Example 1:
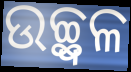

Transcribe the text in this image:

ଉଚ୍ଛ୍ଵଳ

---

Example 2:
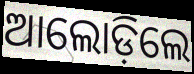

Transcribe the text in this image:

ଆଲୋଡ଼ିଲେ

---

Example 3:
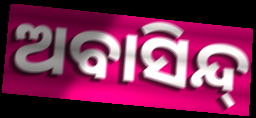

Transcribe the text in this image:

ଅବାସିନ୍ଦ୍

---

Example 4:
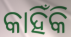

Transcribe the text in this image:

କାହିଁକି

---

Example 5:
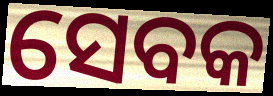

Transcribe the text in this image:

ସେବକ